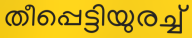
തീപ്പെട്ടിയുരച്ച്